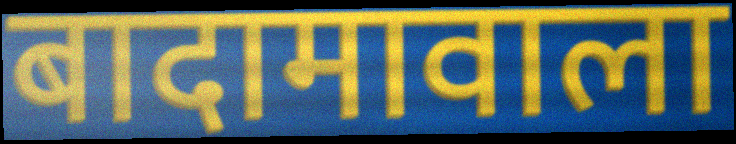
बादामावाला